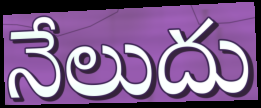
నేలుదు